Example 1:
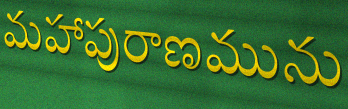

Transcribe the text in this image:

మహాపురాణమును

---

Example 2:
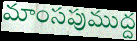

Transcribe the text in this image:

మాంసపుముద్ద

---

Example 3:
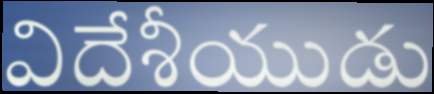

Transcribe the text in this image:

విదేశీయుడు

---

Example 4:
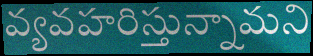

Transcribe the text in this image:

వ్యవహరిస్తున్నామని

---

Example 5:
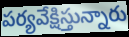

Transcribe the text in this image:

పర్యవేక్షిస్తున్నారు